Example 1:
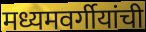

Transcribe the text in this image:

मध्यमवर्गीयांची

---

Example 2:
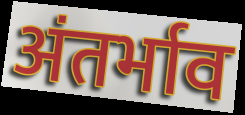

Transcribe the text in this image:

अंतर्भाव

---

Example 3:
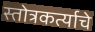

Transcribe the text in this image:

स्तोत्रकर्त्याचे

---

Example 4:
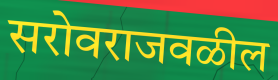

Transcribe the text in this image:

सरोवराजवळील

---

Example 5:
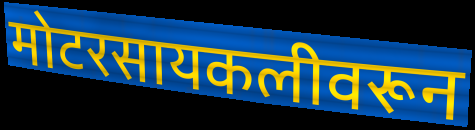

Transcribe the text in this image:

मोटरसायकलीवरून